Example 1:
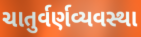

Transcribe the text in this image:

ચાતુર્વર્ણવ્યવસ્થા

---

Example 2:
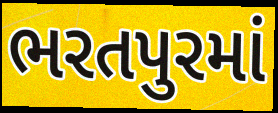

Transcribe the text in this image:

ભરતપુરમાં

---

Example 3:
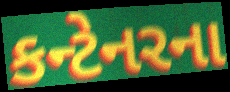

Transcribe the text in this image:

કન્ટેનરના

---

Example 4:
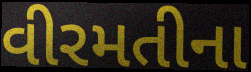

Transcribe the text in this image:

વીરમતીના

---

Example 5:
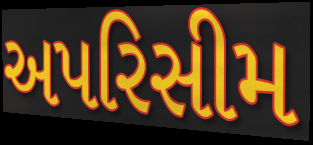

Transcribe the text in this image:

અપરિસીમ